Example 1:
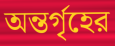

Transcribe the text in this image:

অন্তর্গৃহের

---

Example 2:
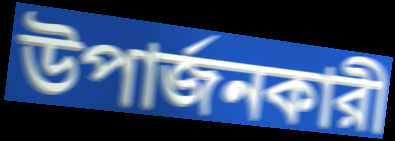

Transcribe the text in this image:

উপার্জনকারী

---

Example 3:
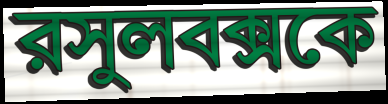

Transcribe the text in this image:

রসুলবক্সকে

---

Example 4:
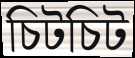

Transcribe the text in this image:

চিটচিট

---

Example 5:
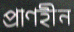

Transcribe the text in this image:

প্রাণহীন